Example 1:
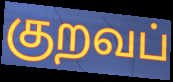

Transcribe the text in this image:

குறவப்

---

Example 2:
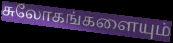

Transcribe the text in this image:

சுலோகங்களையும்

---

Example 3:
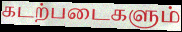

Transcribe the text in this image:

கடற்படைகளும்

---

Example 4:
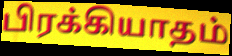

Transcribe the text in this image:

பிரக்கியாதம்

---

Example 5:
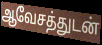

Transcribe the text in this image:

ஆவேசத்துடன்